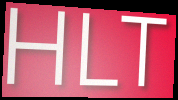
HLT